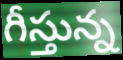
గీస్తున్న